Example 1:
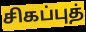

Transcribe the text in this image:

சிகப்புத்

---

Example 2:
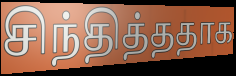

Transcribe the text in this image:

சிந்தித்ததாக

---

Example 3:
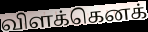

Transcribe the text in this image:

விளக்கெனக்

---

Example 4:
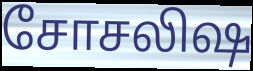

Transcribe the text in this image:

சோசலிஷ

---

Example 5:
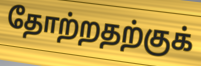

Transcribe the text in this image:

தோற்றதற்குக்